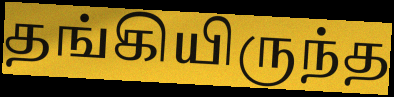
தங்கியிருந்த